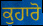
ਕੁਹਾਰੋ